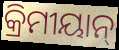
କ୍ରିମୀୟାନ୍